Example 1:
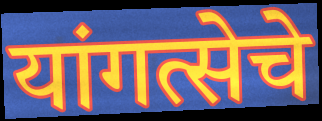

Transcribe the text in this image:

यांगत्सेचे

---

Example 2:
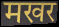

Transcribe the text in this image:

मखर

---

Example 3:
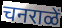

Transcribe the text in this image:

चनराळें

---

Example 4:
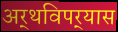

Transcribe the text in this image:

अर्थविपर्यास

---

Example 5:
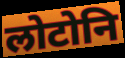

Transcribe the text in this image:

लोटोनि